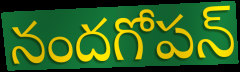
నందగోపన్